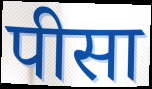
पीसा